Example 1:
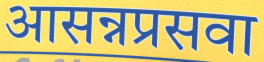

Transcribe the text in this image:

आसन्नप्रसवा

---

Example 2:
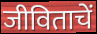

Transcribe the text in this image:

जीविताचें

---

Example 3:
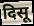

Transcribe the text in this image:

दिसू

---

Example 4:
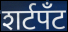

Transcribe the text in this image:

शर्टपॅंट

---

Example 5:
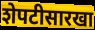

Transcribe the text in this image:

शेपटीसारखा